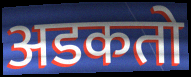
अडकतो